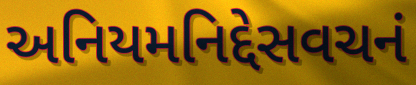
અનિયમનિદ્દેસવચનં